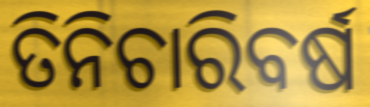
ତିନିଚାରିବର୍ଷ